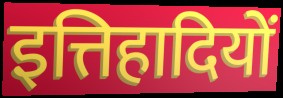
इत्तिहादियों